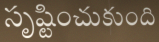
సృష్టించుకుంది